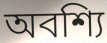
অবশ্যি